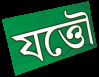
যত্তৌ